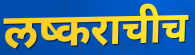
लष्कराचीच